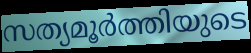
സത്യമൂർത്തിയുടെ